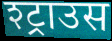
श्ट्राउस